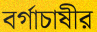
বর্গাচাষীর